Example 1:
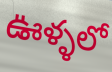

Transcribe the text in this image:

ఊళ్ళలో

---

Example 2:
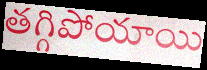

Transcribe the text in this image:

తగ్గిపోయాయి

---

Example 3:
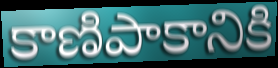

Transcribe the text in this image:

కాణిపాకానికి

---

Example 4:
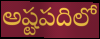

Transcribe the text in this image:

అష్టపదిలో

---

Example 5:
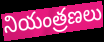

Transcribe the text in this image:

నియంత్రణలు